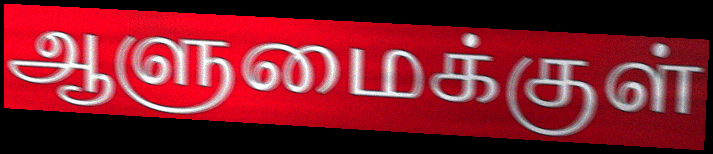
ஆளுமைக்குள்